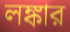
লঙ্কার